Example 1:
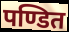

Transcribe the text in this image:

पण्डित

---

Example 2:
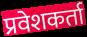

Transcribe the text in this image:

प्रवेशकर्ता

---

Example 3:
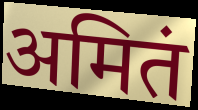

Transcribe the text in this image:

अमितं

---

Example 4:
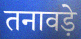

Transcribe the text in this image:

तनावड़े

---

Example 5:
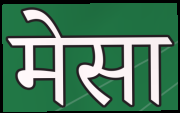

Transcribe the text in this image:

मेसा